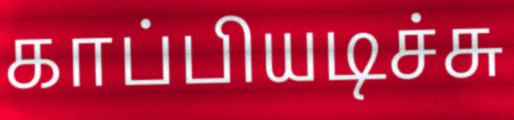
காப்பியடிச்சு